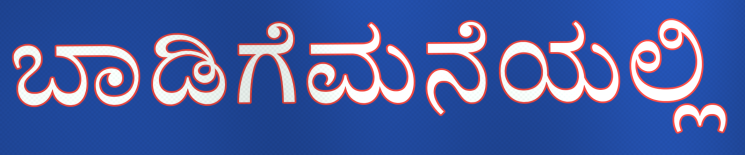
ಬಾಡಿಗೆಮನೆಯಲ್ಲಿ